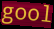
gool